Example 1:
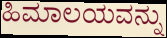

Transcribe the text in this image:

ಹಿಮಾಲಯವನ್ನು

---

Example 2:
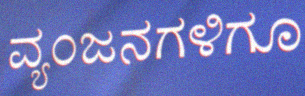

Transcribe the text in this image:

ವ್ಯಂಜನಗಳಿಗೂ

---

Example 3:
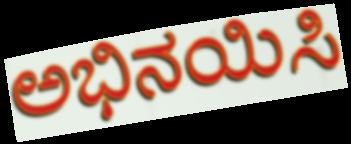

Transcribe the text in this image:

ಅಭಿನಯಿಸಿ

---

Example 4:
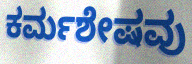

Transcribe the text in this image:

ಕರ್ಮಶೇಷವು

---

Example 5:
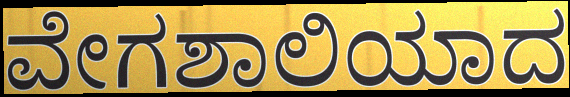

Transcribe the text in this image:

ವೇಗಶಾಲಿಯಾದ